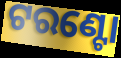
ଟରଣ୍ଟୋ